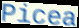
Picea